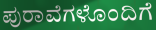
ಪುರಾವೆಗಳೊಂದಿಗೆ